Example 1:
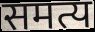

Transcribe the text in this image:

समत्य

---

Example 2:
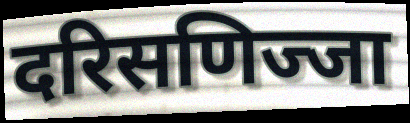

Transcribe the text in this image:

दरिसणिज्जा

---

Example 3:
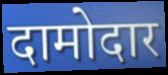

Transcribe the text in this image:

दामोदार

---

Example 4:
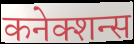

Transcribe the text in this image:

कनेक्शन्स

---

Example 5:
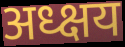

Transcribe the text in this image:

अध्क्षय